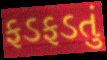
ફડફડતું